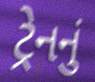
ટ્રેનનું